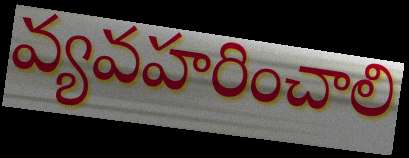
వ్యవహరించాలి